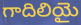
గాదిలియై